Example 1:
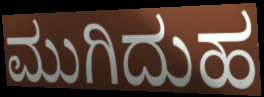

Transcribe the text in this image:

ಮುಗಿದುಹ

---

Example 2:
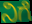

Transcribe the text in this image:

ನಿಗೆ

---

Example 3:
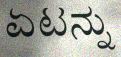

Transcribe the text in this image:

ಏಟನ್ನು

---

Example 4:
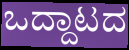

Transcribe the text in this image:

ಒದ್ದಾಟದ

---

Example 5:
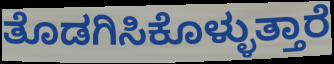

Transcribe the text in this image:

ತೊಡಗಿಸಿಕೊಳ್ಳುತ್ತಾರೆ